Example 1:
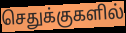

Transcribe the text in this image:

செதுக்குகளில்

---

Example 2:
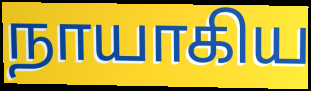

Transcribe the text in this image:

நாயாகிய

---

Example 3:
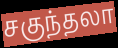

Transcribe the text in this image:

சகுந்தலா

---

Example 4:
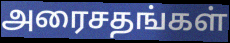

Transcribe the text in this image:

அரைசதங்கள்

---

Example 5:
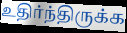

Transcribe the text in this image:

உதிர்ந்திருக்க